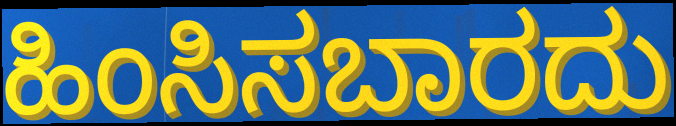
ಹಿಂಸಿಸಬಾರದು